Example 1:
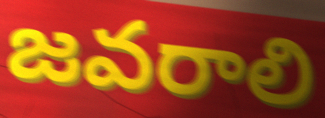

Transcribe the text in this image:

జవరాలి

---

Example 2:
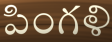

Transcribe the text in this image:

పింగళి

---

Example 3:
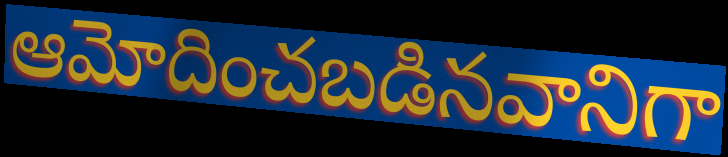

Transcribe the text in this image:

ఆమోదించబడినవానిగా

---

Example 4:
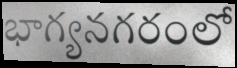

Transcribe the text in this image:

భాగ్యనగరంలో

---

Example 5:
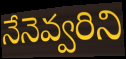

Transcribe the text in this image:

నేనెవ్వరిని